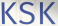
KSK